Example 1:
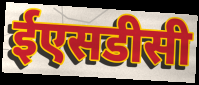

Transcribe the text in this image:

ईएसडीसी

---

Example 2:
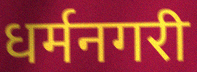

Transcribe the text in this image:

धर्मनगरी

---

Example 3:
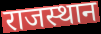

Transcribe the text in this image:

राजस्थान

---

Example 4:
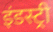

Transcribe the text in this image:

इंडस्ट्री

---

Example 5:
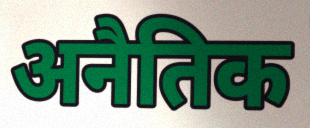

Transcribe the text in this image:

अनैतिक